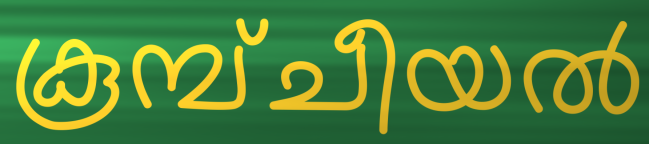
കൂമ്പ്ചീയൽ